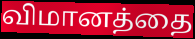
விமானத்தை